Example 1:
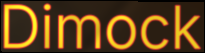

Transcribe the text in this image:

Dimock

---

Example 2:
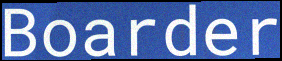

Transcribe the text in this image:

Boarder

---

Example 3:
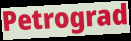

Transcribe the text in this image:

Petrograd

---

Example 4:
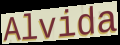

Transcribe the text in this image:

Alvida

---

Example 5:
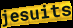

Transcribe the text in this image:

jesuits